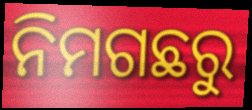
ନିମଗଛରୁ